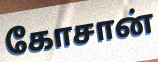
கோசான்